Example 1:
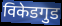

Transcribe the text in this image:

विकेडगुड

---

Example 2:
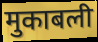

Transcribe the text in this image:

मुकाबली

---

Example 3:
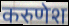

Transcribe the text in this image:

करुणेश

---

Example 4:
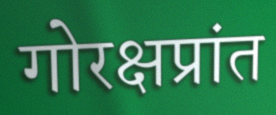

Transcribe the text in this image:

गोरक्षप्रांत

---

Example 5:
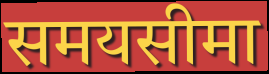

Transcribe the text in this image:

समयसीमा